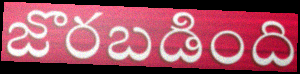
జొరబడింది